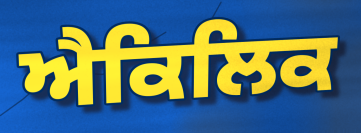
ਐਕਿਲਿਕ